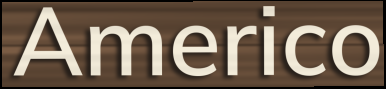
Americo